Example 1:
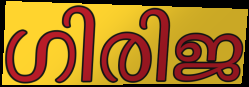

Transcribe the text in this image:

ഗിരിജ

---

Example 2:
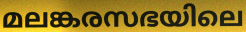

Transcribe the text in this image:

മലങ്കരസഭയിലെ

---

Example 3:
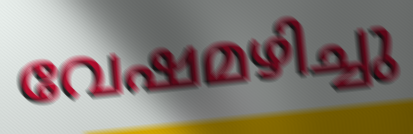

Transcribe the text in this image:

വേഷമഴിച്ചു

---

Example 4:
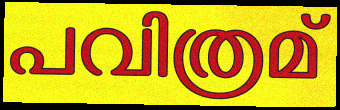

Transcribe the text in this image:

പവിത്രമ്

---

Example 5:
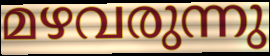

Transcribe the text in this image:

മഴവരുന്നു